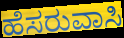
ಹೆಸರುವಾಸಿ